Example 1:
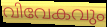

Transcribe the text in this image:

വിവേകവും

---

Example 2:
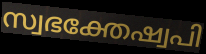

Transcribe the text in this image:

സ്വഭക്തേഷ്വപി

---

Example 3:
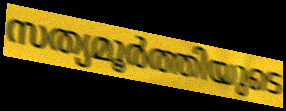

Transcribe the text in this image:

സത്യമൂർത്തിയുടെ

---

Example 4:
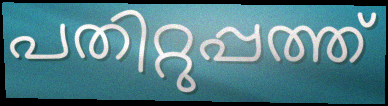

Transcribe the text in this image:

പതിറ്റുപ്പത്ത്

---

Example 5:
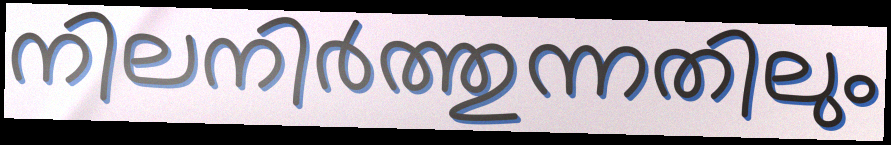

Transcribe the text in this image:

നിലനിർത്തുന്നതിലും